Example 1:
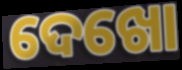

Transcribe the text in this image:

ଦେଖୋ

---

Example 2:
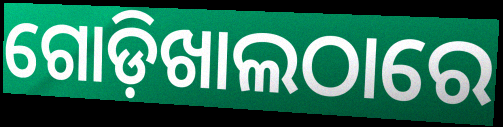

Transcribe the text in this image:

ଗୋଡ଼ିଖାଲଠାରେ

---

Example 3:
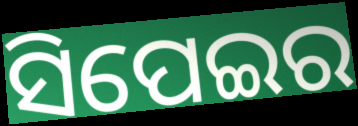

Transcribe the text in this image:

ସିପେଇର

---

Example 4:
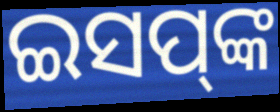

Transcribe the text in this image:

ଇସପ୍‌ଙ୍କ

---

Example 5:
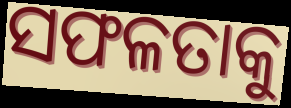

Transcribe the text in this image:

ସଫଳତାକୁ